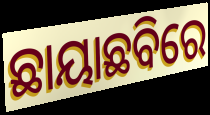
ଛାୟାଛବିରେ